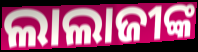
ଲାଲାଜୀଙ୍କ